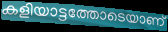
കളിയാട്ടത്തോടെയാണ്